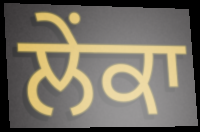
ਲੇਂਕਾ